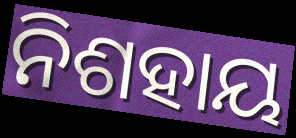
ନିଶହାୟ